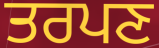
ਤਰਪਣ